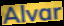
Alvar